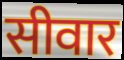
सीवार